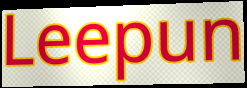
Leepun